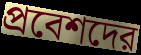
প্রবেশদের